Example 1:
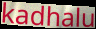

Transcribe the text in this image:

kadhalu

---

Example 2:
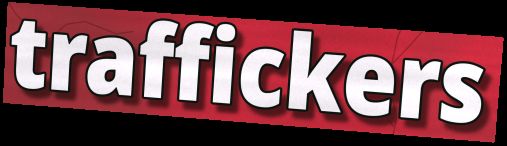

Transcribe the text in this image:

traffickers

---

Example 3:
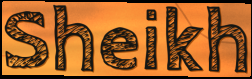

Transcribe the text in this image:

Sheikh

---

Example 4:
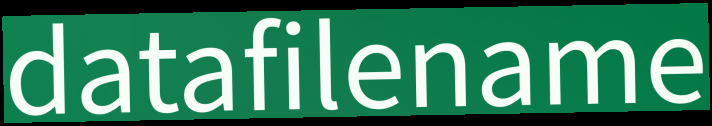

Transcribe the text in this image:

datafilename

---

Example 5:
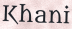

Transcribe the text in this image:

Khani